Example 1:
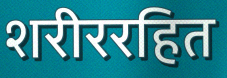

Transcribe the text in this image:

शरीररहित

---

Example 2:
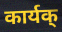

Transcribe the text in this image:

कार्यक्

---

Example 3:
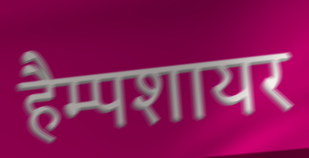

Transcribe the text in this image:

हैम्पशायर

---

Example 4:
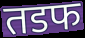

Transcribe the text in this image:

तडफ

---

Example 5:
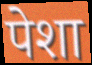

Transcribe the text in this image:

पेशा